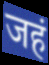
जहं